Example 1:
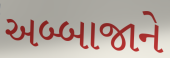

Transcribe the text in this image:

અબ્બાજાને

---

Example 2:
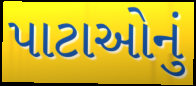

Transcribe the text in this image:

પાટાઓનું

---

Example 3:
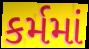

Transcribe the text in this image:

કર્મમાં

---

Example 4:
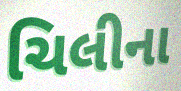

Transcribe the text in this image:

ચિલીના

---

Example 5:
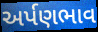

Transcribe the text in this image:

અર્પણભાવ